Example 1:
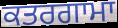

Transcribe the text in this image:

ਕਤਰਗਾਮਾ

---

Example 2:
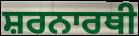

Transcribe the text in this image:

ਸ਼ਰਨਾਰਥੀ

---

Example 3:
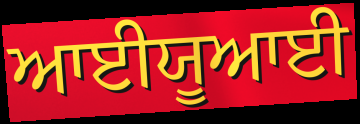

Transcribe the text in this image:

ਆਈਯੂਆਈ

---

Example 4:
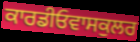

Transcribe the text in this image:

ਕਾਰਡੀਓਵਾਸਕੁਲਰ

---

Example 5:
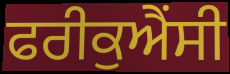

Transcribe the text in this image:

ਫਰੀਕੁਐਂਸੀ